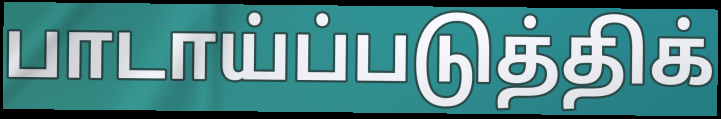
பாடாய்ப்படுத்திக்